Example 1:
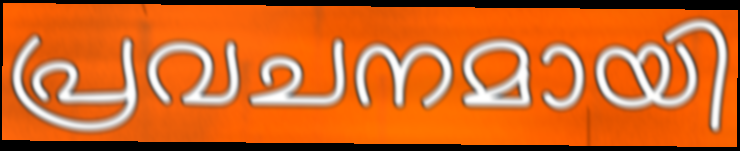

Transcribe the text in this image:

പ്രവചനമായി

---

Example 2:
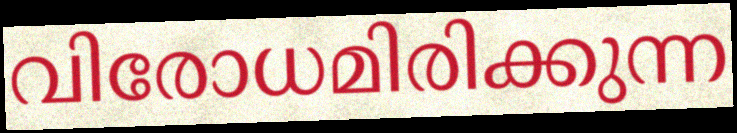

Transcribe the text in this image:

വിരോധമിരിക്കുന്ന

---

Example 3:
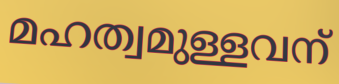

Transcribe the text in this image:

മഹത്വമുള്ളവന്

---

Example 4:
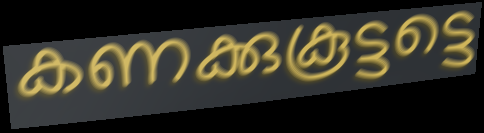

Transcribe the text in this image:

കണക്കുകൂട്ടട്ടെ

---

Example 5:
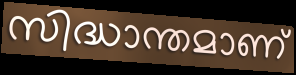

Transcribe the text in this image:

സിദ്ധാന്തമാണ്